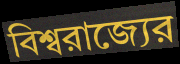
বিশ্বরাজ্যের